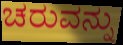
ಚರುವನ್ನು